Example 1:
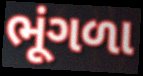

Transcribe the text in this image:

ભૂંગળા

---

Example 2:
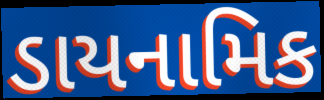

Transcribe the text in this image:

ડાયનામિક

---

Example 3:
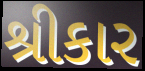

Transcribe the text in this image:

શ્રીકાર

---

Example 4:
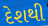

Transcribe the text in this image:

દેશથી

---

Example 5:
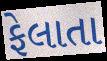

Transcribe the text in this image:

ફેલાતા